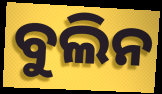
ବୁଲିନ